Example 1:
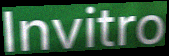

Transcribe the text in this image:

Invitro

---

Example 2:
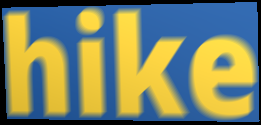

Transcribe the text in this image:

hike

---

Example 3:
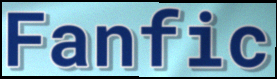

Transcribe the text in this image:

Fanfic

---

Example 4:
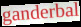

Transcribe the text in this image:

ganderbal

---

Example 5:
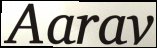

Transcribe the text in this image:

Aarav